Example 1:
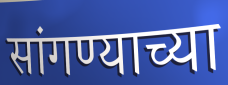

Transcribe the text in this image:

सांगण्याच्या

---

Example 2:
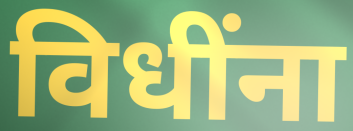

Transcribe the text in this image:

विधींना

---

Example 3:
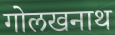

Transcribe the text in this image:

गोलखनाथ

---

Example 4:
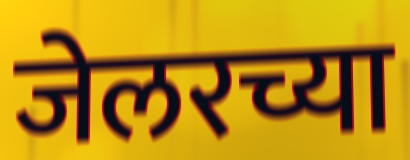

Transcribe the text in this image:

जेलरच्या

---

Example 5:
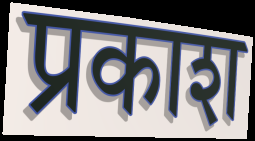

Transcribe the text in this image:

प्रकाश